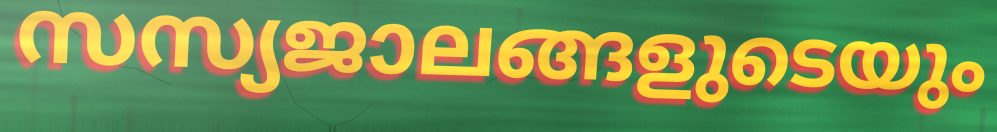
സസ്യജാലങ്ങളുടെയും